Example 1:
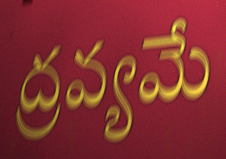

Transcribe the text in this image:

ద్రవ్యమే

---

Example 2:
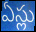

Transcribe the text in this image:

ఏస్లు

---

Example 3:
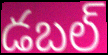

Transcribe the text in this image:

డబల్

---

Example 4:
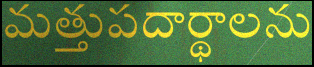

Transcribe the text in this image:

మత్తుపదార్థాలను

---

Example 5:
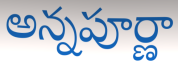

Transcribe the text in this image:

అన్నపూర్ణా